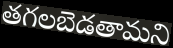
తగలబెడతామని